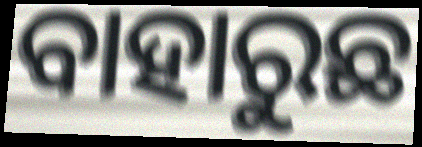
ବାହାରୁଛ